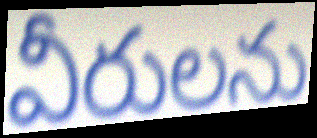
వీరులను